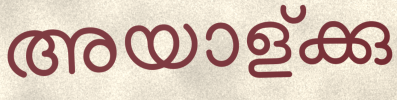
അയാള്ക്കു